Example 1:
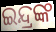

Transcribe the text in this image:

ଇନ୍ଦ୍ରଙ୍କ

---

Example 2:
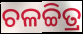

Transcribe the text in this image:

ଚଳଚ୍ଚିତ୍ର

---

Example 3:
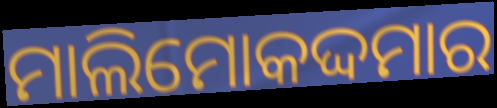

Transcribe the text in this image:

ମାଲିମୋକଦ୍ଦମାର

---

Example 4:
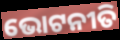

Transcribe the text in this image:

ଭୋଟନୀତି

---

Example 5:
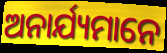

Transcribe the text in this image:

ଅନାର୍ଯ୍ୟମାନେ